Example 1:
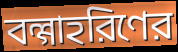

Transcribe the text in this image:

বল্গাহরিণের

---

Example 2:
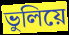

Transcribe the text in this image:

ভুলিয়ে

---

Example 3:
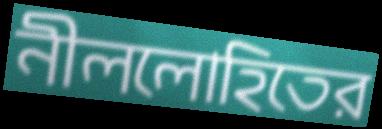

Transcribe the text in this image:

নীললোহিতের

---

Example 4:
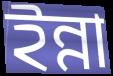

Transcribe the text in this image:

ইন্না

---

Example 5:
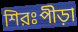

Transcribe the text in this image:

শিরঃপীড়া